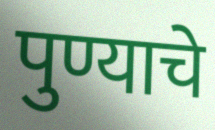
पुण्याचे